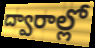
ద్వారాల్లో